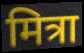
मित्रा